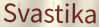
Svastika